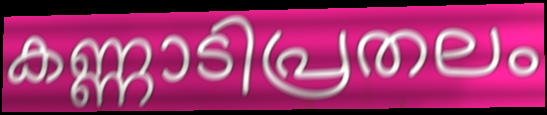
കണ്ണാടിപ്രതലം